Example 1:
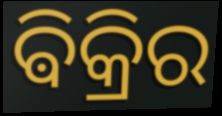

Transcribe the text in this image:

ଵିକ୍ରିର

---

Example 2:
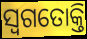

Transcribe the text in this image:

ସ୍ୱଗତୋକ୍ତି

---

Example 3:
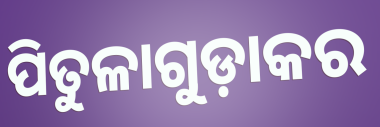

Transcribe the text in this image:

ପିତୁଳାଗୁଡ଼ାକର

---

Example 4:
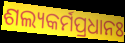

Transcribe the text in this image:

ଶଲ୍ୟକର୍ମପ୍ରଧାନଃ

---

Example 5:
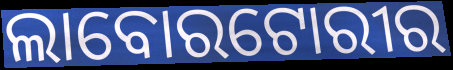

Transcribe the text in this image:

ଲାବୋରଟୋରୀର